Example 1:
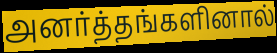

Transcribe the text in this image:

அனர்த்தங்களினால்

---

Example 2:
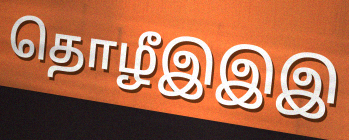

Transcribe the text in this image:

தொழீஇஇஇ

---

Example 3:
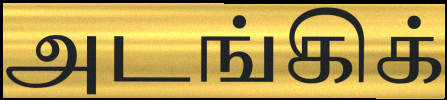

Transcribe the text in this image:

அடங்கிக்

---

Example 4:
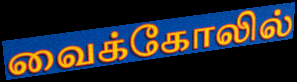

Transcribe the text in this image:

வைக்கோலில்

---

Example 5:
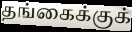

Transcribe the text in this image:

தங்கைக்குக்